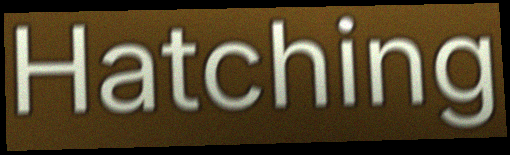
Hatching